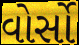
વોર્સો